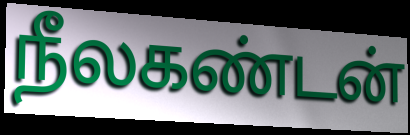
நீலகண்டன்